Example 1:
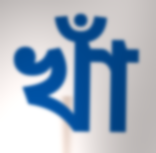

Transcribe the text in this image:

খাঁ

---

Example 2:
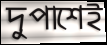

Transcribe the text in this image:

দুপাশেই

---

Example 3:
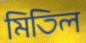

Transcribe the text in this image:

মিতিল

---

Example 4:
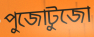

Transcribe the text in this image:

পুজোটুজো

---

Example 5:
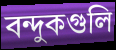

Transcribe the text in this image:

বন্দুকগুলি